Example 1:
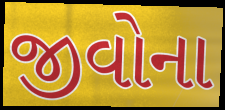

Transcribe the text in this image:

જીવોના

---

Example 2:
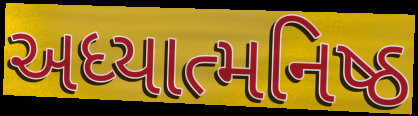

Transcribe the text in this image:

અધ્યાત્મનિષ્ઠ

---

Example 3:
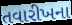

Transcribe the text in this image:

તવારીખના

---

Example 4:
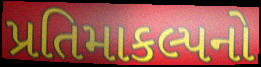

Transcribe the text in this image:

પ્રતિમાકલ્પનો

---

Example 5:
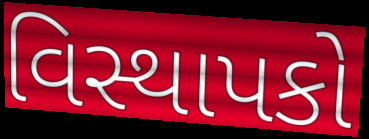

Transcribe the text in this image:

વિસ્થાપકો